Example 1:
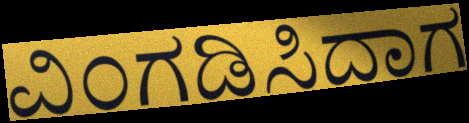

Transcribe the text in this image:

ವಿಂಗಡಿಸಿದಾಗ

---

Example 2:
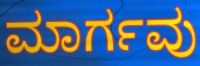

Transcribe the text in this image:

ಮಾರ್ಗವು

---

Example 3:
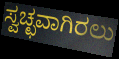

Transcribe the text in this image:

ಸ್ವಚ್ಛವಾಗಿರಲು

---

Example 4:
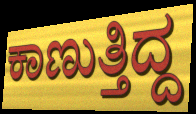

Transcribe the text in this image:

ಕಾಣುತ್ತಿದ್ದ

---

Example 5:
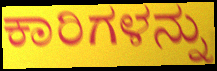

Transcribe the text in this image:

ಕಾರಿಗಳನ್ನು